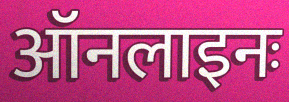
ऑनलाइनः